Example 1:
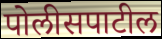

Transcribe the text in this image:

पोलीसपाटील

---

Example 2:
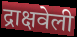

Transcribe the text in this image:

द्राक्षवेली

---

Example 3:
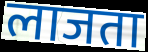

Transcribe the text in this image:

लाजता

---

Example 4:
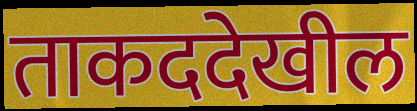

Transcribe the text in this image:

ताकददेखील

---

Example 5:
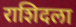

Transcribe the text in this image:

राशिदला